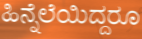
ಹಿನ್ನೆಲೆಯಿದ್ದರೂ